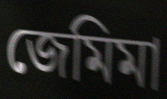
জেমিমা